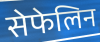
सेफेलिन